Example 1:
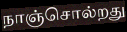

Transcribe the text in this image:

நாஞ்சொல்றது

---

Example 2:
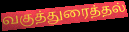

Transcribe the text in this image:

வகுத்துரைத்தல்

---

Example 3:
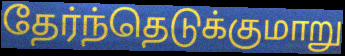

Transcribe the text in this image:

தேர்ந்தெடுக்குமாறு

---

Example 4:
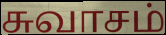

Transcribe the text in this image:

சுவாசம்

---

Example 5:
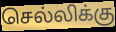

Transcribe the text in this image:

செல்லிக்கு